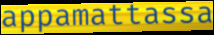
appamattassa